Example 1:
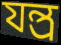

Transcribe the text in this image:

যন্ত্র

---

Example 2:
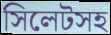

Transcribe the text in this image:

সিলেটসহ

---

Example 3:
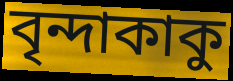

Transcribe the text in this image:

বৃন্দাকাকু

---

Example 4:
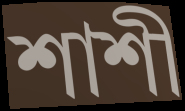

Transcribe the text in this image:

শাশী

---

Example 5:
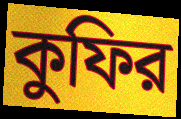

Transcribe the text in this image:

কুফির